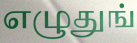
எழுதுங்